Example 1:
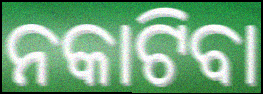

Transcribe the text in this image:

ନକାଟିବା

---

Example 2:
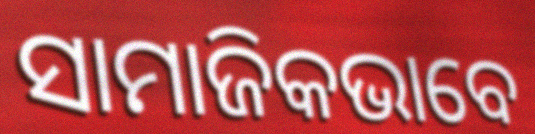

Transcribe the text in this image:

ସାମାଜିକଭାବେ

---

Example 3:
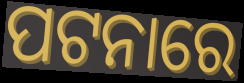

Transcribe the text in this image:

ପଟନାରେ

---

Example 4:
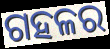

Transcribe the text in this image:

ଗହଳର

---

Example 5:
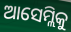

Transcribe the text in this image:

ଆସେମ୍ଲିକୁ